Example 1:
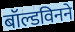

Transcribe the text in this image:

बॉल्डविनने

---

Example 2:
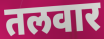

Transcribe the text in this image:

तलवार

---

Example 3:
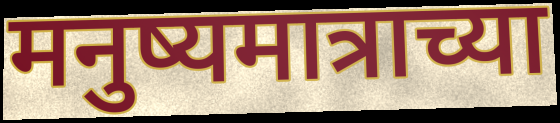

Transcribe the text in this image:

मनुष्यमात्राच्या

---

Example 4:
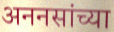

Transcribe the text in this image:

अननसांच्या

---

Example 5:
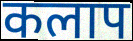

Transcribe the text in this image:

कलाप